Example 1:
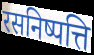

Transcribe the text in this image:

रसनिष्पत्ति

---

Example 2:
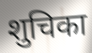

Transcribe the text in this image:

शुचिका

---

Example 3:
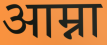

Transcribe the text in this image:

आम्ना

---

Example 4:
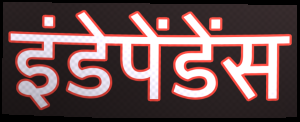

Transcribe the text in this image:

इंडेपेंडेंस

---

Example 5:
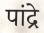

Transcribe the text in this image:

पांद्रे